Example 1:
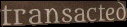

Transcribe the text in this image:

transacted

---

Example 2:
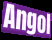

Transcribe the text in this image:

Angol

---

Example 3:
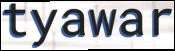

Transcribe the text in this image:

tyawar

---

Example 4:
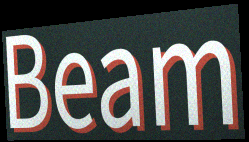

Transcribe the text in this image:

Beam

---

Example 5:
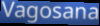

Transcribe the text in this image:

Vagosana